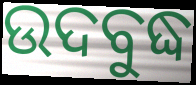
ଉଦବୁଦ୍ଧ